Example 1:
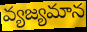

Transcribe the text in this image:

వ్యజ్యమాన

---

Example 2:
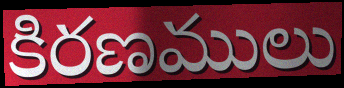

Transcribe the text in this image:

కిరణములు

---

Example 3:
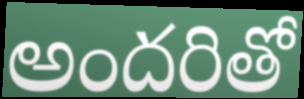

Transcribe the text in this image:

అందరితో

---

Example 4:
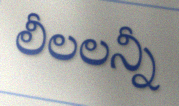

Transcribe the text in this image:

లీలలన్నీ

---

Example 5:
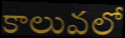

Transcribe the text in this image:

కాలువలో